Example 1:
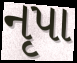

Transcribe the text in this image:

નૃપા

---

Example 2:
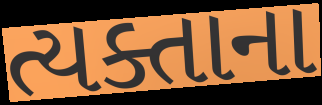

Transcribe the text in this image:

ત્યક્તાના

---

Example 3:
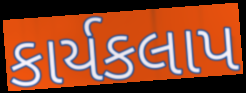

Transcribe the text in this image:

કાર્યકલાપ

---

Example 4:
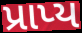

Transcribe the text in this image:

પ્રાપ્ય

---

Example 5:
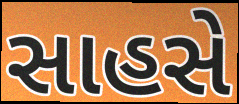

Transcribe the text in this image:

સાહસે